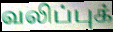
வலிப்புக்